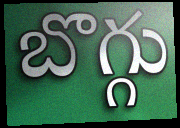
బొగ్గు